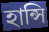
হান্সি